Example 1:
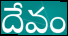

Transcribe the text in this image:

దేవం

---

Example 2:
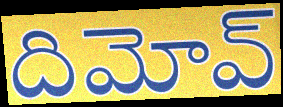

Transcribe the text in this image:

దిమోవ్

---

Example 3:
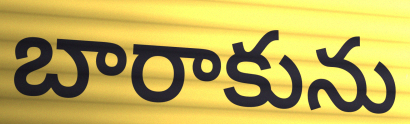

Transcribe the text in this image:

బారాకును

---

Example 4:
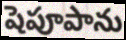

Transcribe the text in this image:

షెపూపాను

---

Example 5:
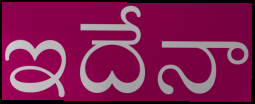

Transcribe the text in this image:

ఇదేనా